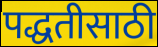
पद्धतीसाठी